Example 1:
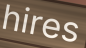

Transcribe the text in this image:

hires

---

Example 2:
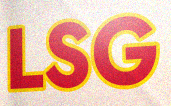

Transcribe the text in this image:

LSG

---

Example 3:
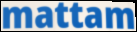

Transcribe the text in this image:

mattam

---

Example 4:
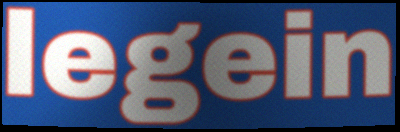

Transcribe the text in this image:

legein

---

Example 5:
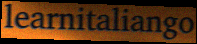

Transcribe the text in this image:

learnitaliango